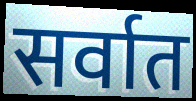
सर्वात